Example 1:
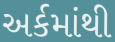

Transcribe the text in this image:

અર્કમાંથી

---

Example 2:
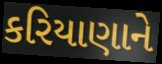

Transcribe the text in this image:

કરિયાણાને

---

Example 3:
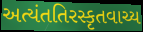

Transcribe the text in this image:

અત્યંતતિરસ્કૃતવાચ્ય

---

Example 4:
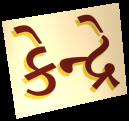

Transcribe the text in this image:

કેન્દ્રે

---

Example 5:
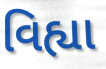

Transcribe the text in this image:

વિહ્યા